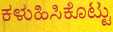
ಕಳುಹಿಸಿಕೊಟ್ಟು